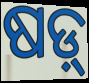
ଷଡ଼୍